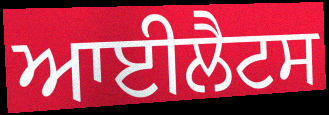
ਆਈਲੈਟਸ